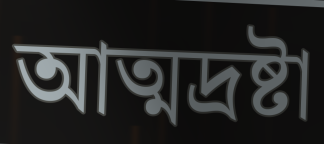
আত্মদ্রষ্টা